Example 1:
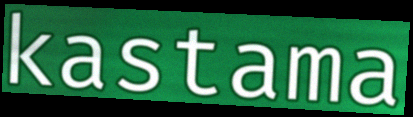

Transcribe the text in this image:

kastama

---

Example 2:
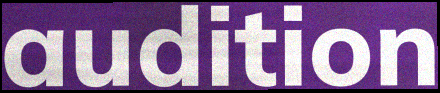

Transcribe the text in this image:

audition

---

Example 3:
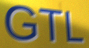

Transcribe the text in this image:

GTL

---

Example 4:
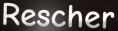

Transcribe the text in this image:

Rescher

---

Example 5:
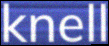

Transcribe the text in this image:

knell